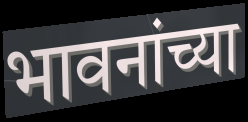
भावनांच्या